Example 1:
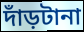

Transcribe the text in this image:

দাঁড়টানা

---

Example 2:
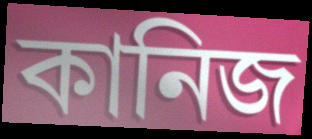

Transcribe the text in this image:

কানিজ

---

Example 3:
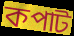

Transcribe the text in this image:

কপাট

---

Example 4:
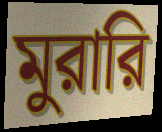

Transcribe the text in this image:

মুরারি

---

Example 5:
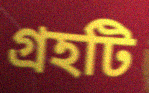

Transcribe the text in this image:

গ্রহটি